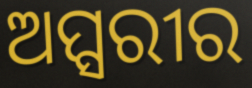
ଅପ୍ସରୀର